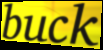
buck